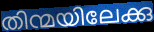
തിന്മയിലേക്കു